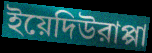
ইয়েদিউরাপ্পা